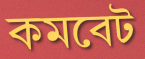
কমবেট